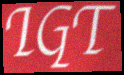
IGT